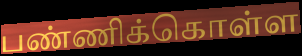
பண்ணிக்கொள்ள